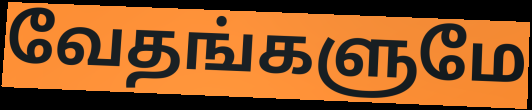
வேதங்களுமே